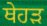
ਥੇਹੜ